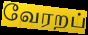
வேரறப்